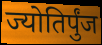
ज्योतिर्पुंज